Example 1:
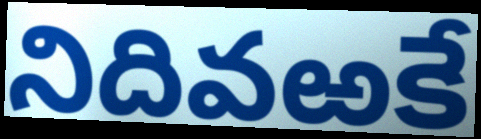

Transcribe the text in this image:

నిదివఱకే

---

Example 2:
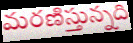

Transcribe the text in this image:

మరణిస్తున్నది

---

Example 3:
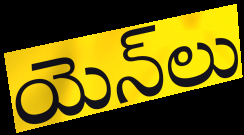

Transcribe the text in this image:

యెన్‌లు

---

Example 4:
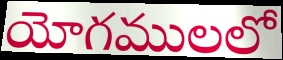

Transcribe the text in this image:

యోగములలో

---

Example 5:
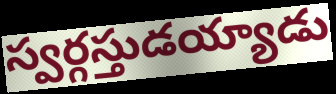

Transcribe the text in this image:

స్వర్గస్తుడయ్యాడు